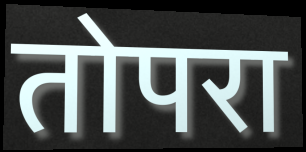
तोपरा